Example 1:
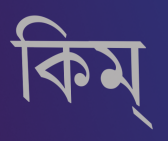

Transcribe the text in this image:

কিম্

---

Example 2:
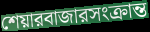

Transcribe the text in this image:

শেয়ারবাজারসংক্রান্ত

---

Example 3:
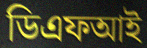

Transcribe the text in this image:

ডিএফআই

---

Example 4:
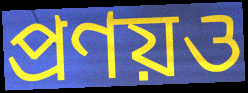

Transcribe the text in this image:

প্রণয়ও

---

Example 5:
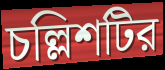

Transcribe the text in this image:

চল্লিশটির